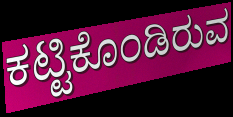
ಕಟ್ಟಿಕೊಂಡಿರುವ